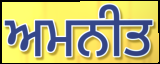
ਅਮਨੀਤ